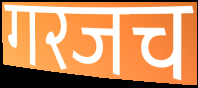
गरजच